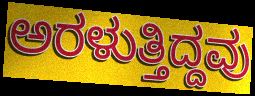
ಅರಳುತ್ತಿದ್ದವು